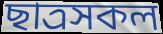
ছাত্ৰসকল